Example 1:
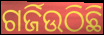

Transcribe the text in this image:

ଗର୍ଜିଉଠିଛି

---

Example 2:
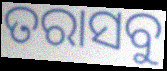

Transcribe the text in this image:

ତରାସବୁ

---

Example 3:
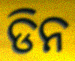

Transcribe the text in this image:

ଡିନ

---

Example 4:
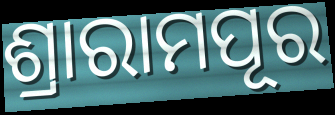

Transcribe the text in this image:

ଶ୍ରାରାମପୂର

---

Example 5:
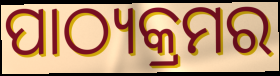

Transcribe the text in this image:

ପାଠ୍ୟକ୍ରମର